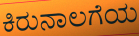
ಕಿರುನಾಲಗೆಯ